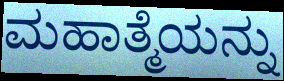
ಮಹಾತ್ಮೆಯನ್ನು